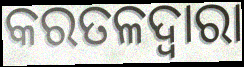
କରତଳଦ୍ୱାରା